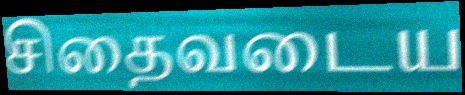
சிதைவடைய